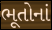
ભૂતોનાં